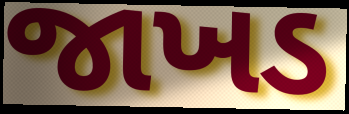
જાખડ